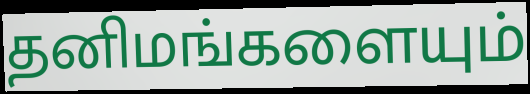
தனிமங்களையும்